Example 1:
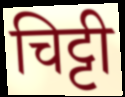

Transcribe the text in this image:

चिट्टी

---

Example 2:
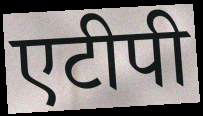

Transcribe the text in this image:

एटीपी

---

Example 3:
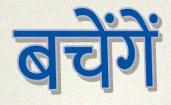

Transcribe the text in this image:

बचेंगें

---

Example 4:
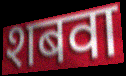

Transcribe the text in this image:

शबवा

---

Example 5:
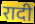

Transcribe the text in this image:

रादी